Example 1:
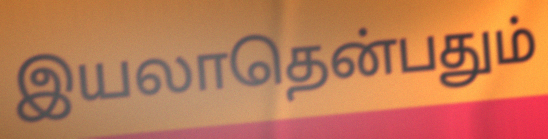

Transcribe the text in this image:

இயலாதென்பதும்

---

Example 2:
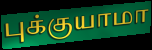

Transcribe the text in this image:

புக்குயாமா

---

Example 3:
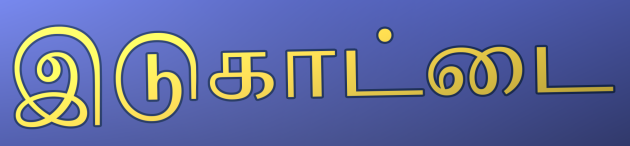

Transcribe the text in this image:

இடுகாட்டை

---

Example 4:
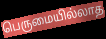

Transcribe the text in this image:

பெருமையில்லாத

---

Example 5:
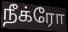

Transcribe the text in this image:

நீக்ரோ